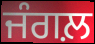
ਜੰਗਲ਼